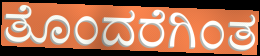
ತೊಂದರೆಗಿಂತ